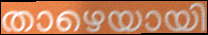
താഴെയായി